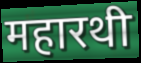
महारथी